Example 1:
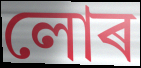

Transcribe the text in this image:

লোৰ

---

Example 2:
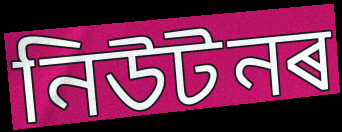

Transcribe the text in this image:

নিউটনৰ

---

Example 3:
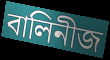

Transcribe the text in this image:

বালিনীজ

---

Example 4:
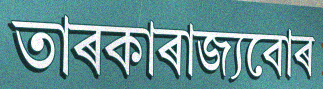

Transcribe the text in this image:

তাৰকাৰাজ্যবোৰ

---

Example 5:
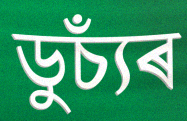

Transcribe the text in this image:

ডুচ্যঁৰ